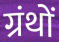
ग्रंथों